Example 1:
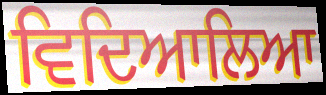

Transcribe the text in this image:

ਵਿਦਿਆਲਿਆ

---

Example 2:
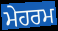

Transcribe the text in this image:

ਮੇਹਰਮ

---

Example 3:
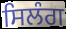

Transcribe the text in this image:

ਸਿਲੰਗ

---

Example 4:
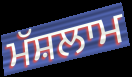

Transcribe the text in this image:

ਮੱਸ਼ਲਾਮ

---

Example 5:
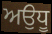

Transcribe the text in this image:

ਅਉਧੂ